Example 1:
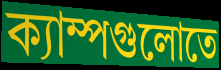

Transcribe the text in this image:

ক্যাম্পগুলোতে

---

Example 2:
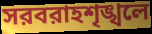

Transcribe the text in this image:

সরবরাহশৃঙ্খলে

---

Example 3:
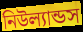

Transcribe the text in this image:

নিউল্যান্ডস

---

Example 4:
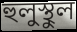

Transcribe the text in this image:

হুলুস্থুল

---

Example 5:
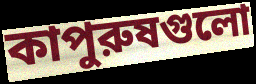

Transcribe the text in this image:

কাপুরুষগুলো